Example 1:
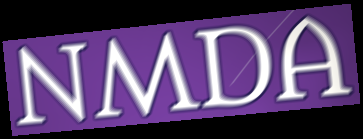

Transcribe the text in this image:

NMDA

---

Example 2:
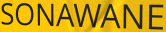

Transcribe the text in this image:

SONAWANE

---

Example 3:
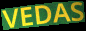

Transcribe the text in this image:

VEDAS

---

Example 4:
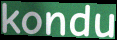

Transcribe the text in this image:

kondu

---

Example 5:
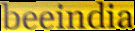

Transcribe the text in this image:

beeindia